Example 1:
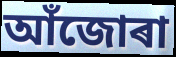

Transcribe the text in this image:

আঁজোৰা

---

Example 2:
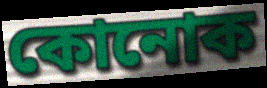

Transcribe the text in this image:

কোনোক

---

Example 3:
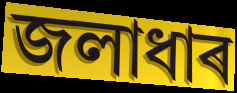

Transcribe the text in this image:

জলাধাৰ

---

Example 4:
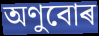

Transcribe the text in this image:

অণুবোৰ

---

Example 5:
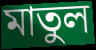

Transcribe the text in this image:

মাতুল